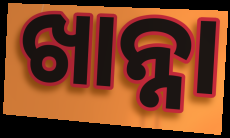
ଖାନ୍ନା